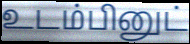
உடம்பினுட்